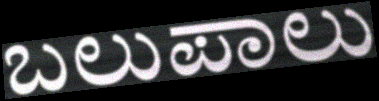
ಬಲುಪಾಲು